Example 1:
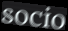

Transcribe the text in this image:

socio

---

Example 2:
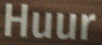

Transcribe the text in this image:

Huur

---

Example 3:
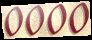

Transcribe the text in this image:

oooo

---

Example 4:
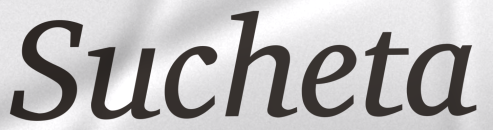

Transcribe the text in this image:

Sucheta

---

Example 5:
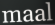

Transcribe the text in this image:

maal